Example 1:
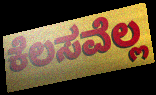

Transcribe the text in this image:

ಕೆಲಸವೆಲ್ಲ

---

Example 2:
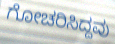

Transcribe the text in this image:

ಗೋಚರಿಸಿದ್ದವು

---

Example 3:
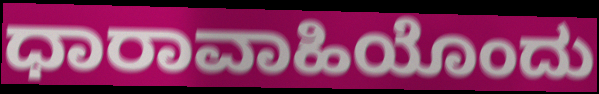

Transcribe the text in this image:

ಧಾರಾವಾಹಿಯೊಂದು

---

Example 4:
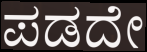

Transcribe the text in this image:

ಪಡದೇ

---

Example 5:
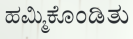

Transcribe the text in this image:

ಹಮ್ಮಿಕೊಂಡಿತು